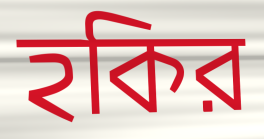
হকির